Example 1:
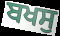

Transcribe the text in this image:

ਬਖਸੁ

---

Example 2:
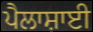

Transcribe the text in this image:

ਪੈਲਾਸ਼ਾਈ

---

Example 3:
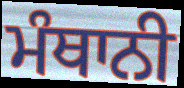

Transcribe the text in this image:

ਮੰਥਾਨੀ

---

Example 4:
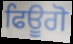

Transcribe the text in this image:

ਫਿਊਗੋ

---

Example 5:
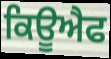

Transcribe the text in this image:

ਕਿਊਐਫ